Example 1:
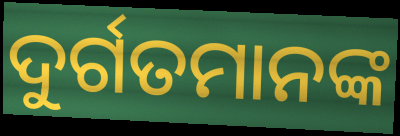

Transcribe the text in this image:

ଦୁର୍ଗତମାନଙ୍କ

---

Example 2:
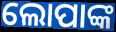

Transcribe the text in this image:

ଲୋପାଙ୍କ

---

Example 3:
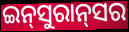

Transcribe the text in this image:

ଇନ୍‍ସୁରାନ୍‍ସର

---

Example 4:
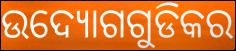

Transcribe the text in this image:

ଉଦ୍ୟୋଗଗୁଡିକର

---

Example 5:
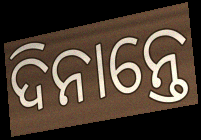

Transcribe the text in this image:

ଦିନାନ୍ତେ